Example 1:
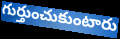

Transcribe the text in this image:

గుర్తుంచుకుంటారు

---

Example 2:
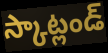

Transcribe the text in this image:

స్కాట్లండ్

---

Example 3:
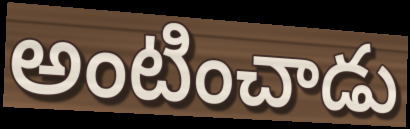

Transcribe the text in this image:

అంటించాడు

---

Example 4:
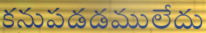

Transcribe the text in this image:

కనుపడడములేదు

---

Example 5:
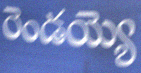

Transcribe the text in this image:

రెండయ్యె